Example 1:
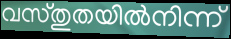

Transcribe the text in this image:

വസ്തുതയിൽനിന്ന്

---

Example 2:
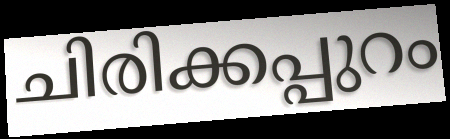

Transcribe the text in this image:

ചിരിക്കപ്പുറം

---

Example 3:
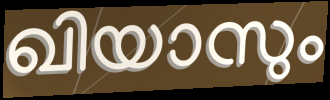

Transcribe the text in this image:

ഖിയാസും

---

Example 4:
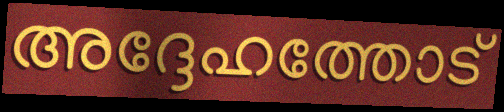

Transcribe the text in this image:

അദ്ദേഹത്തോട്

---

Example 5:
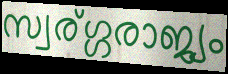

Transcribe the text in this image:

സ്വര്ഗ്ഗരാജ്യം